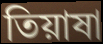
তিয়াষা